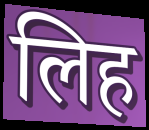
लिह